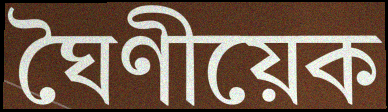
ঘৈণীয়েক